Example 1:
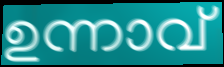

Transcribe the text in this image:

ഉന്നാവ്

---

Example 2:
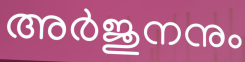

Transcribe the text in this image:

അർജുനനും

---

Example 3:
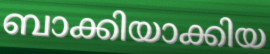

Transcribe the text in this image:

ബാക്കിയാക്കിയ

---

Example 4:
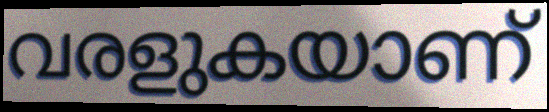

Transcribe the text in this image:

വരളുകയാണ്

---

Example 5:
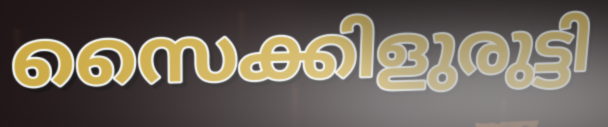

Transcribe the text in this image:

സൈക്കിളുരുട്ടി